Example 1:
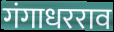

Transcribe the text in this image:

गंगाधरराव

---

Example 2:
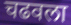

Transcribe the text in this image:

चढवला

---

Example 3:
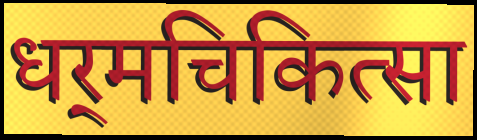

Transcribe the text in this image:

धर्मचिकित्सा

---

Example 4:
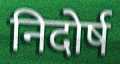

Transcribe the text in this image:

निदोर्ष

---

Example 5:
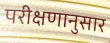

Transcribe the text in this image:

परीक्षणानुसार